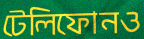
টেলিফোনও